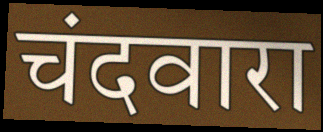
चंदवारा